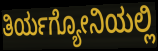
ತಿರ್ಯಗ್ಯೋನಿಯಲ್ಲಿ